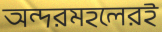
অন্দরমহলেরই